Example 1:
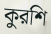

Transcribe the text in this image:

কুরশি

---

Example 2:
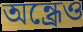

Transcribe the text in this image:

অন্ধ্রেও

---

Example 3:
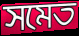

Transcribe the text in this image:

সমেত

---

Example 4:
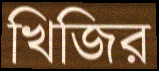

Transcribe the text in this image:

খিজির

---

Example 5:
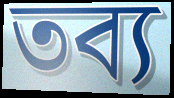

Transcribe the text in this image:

তব্য